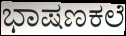
ಭಾಷಣಕಲೆ